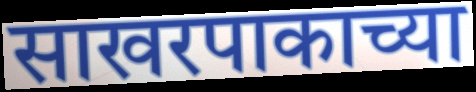
साखरपाकाच्या